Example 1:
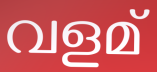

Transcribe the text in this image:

വളമ്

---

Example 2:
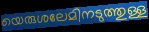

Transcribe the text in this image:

യെരുശലേമിനടുത്തുള്ള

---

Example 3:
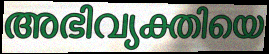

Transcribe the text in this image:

അഭിവ്യക്തിയെ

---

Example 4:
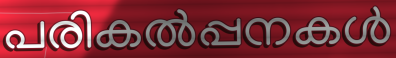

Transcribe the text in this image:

പരികൽപ്പനകൾ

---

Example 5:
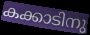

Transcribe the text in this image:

കക്കാടിനു